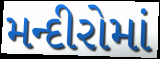
મન્દીરોમાં